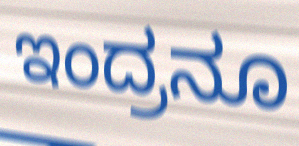
ಇಂದ್ರನೂ